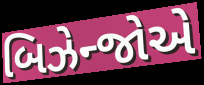
બિઝેન્જોએ